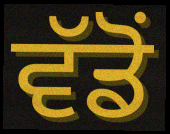
ਵੱਡੋਂ